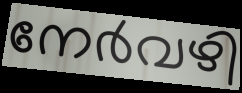
നേർവഴി